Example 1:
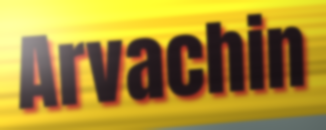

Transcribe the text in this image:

Arvachin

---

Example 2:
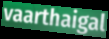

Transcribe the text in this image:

vaarthaigal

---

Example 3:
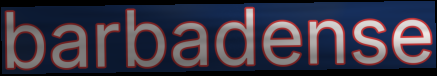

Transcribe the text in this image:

barbadense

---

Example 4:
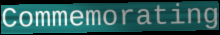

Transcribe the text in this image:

Commemorating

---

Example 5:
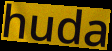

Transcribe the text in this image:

huda